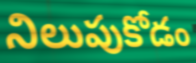
నిలుపుకోడం